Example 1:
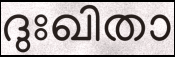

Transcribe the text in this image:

ദുഃഖിതാ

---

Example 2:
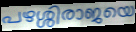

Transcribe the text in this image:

പഴശ്ശിരാജയെ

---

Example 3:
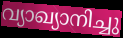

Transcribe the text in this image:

വ്യാഖ്യാനിച്ചു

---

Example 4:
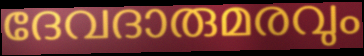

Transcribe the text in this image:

ദേവദാരുമരവും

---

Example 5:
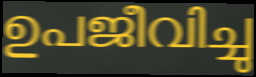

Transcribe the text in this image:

ഉപജീവിച്ചു